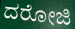
ದರೋಜಿ